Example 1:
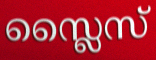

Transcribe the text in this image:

സ്ലൈസ്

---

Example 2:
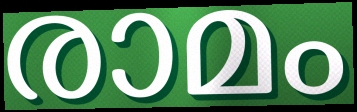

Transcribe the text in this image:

രാമം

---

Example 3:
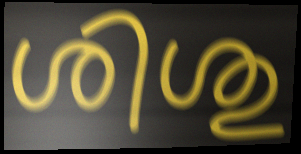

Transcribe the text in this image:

ശിശു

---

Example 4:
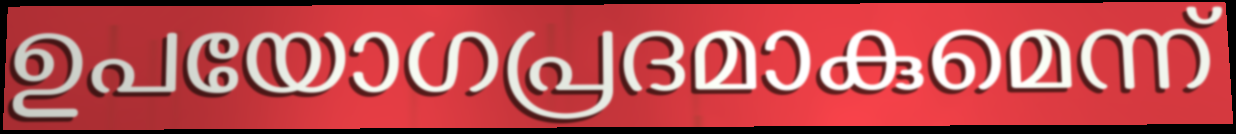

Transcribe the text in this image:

ഉപയോഗപ്രദമാകുമെന്ന്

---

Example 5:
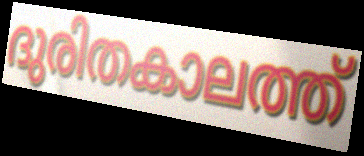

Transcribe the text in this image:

ദുരിതകാലത്ത്